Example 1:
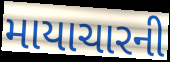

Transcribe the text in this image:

માયાચારની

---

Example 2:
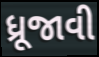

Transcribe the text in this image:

ધ્રૂજાવી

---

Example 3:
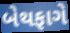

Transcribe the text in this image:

બેથફાગે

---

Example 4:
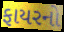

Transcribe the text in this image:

ફાયરનો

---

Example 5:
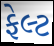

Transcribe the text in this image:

ફેલ્ટ